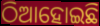
ଠିଆହୋଇଛି